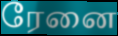
ரேனை